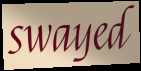
swayed